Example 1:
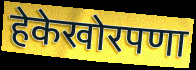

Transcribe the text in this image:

हेकेखोरपणा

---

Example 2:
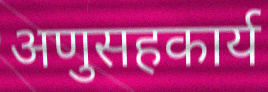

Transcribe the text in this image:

अणुसहकार्य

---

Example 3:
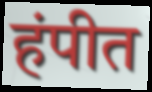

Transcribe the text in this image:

हंपीत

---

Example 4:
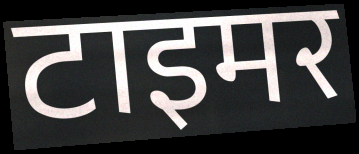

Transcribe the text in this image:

टाइमर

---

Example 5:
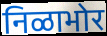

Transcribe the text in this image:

निळाभोर